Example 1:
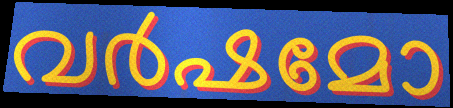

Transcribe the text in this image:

വർഷമോ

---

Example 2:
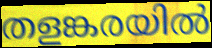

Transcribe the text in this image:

തളങ്കരയിൽ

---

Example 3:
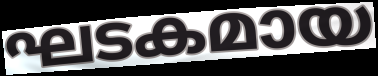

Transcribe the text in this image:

ഘടകമായ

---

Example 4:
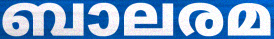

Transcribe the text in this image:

ബാലരമ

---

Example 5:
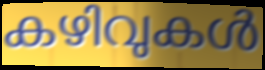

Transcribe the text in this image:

കഴിവുകൾ